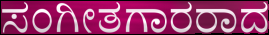
ಸಂಗೀತಗಾರರಾದ